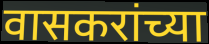
वासकरांच्या